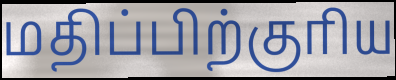
மதிப்பிற்குரிய